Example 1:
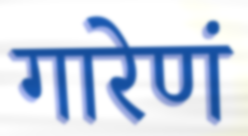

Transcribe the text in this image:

गारेणं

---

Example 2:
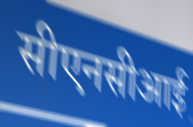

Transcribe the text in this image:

सीएनसीआई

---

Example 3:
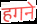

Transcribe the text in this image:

हगने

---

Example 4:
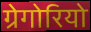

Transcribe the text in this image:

ग्रेगोरियो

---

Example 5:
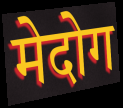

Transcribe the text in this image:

मेदोग